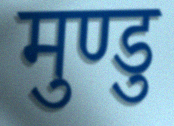
मुण्डु